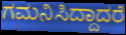
ಗಮನಿಸಿದ್ದಾದರೆ